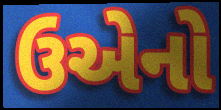
ઉએનો